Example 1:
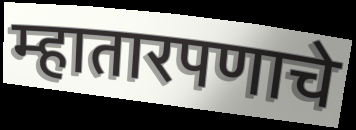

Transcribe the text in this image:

म्हातारपणाचे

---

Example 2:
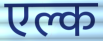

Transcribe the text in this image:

एल्क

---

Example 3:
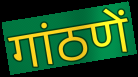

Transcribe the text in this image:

गांठणें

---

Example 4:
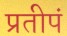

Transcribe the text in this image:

प्रतीपं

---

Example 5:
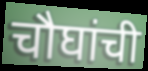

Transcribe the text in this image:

चौघांची